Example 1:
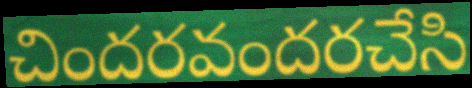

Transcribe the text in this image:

చిందరవందరచేసి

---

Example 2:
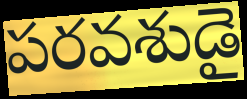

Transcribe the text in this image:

పరవశుడై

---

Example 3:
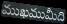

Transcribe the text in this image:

ముఖముమీది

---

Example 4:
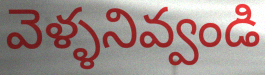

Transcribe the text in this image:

వెళ్ళనివ్వండి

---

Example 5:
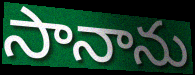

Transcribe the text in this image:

సానాను